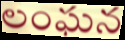
లంఘన